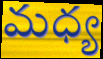
మధ్య